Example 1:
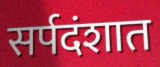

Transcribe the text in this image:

सर्पदंशात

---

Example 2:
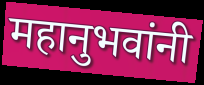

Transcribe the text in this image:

महानुभवांनी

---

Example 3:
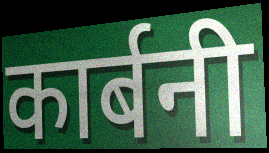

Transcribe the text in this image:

कार्बनी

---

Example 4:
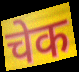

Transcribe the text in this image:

चेक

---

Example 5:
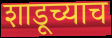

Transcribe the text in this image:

शाडूच्याच